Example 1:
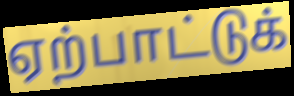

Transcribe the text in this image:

ஏற்பாட்டுக்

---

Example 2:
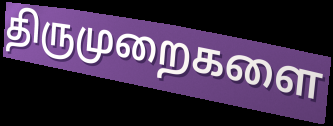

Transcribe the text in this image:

திருமுறைகளை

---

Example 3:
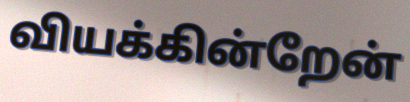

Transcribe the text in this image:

வியக்கின்றேன்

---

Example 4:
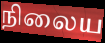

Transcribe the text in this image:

நிலைய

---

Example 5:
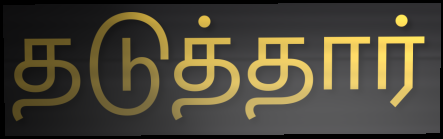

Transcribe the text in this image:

தடுத்தார்